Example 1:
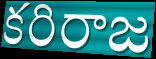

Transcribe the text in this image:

కరిరాజ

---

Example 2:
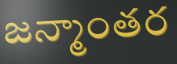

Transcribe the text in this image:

జన్మాంతర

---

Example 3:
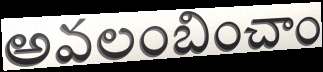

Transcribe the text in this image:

అవలంబించాం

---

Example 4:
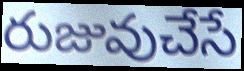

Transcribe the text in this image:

రుజువుచేసే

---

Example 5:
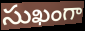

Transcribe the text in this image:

సుఖంగా